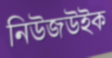
নিউজউইক